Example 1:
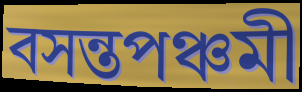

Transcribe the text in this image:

বসন্তপঞ্চমী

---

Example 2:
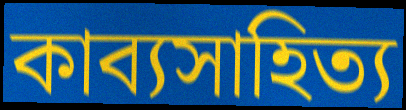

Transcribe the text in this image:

কাব্যসাহিত্য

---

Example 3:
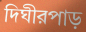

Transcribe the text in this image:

দিঘীরপাড়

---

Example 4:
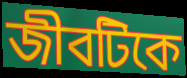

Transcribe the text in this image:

জীবটিকে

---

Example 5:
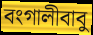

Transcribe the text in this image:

বংগালীবাবু